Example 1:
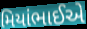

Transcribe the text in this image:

મિયાંભાઈએ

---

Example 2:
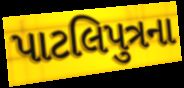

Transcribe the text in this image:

પાટલિપુત્રના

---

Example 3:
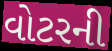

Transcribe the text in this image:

વોટરની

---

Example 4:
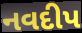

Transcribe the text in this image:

નવદીપ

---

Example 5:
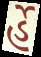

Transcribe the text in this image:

ર્હે